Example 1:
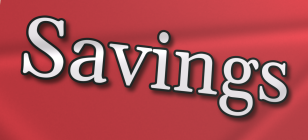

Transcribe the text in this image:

Savings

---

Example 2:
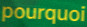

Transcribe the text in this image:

pourquoi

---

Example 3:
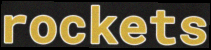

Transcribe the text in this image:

rockets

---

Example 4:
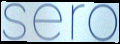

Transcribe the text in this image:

sero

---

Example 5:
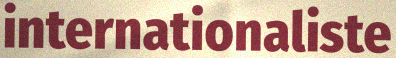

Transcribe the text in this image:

internationaliste